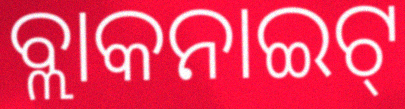
ବ୍ଲାକନାଇଟ୍